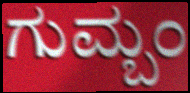
ಗುಮ್ಬಂ